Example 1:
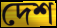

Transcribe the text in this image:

দেশ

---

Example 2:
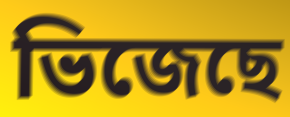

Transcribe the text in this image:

ভিজেছে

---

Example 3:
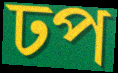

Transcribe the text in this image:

ঢপ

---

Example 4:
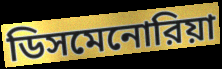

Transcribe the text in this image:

ডিসমেনোরিয়া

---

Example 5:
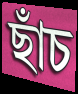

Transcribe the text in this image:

ছাঁচ